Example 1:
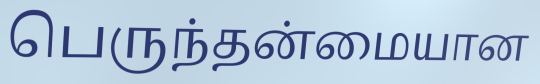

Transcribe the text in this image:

பெருந்தன்மையான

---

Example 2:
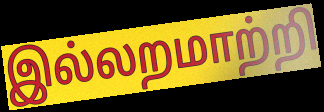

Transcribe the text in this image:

இல்லறமாற்றி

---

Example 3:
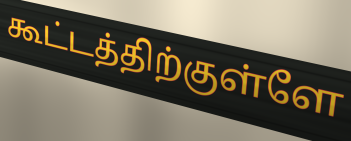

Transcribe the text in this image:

கூட்டத்திற்குள்ளே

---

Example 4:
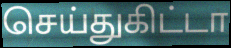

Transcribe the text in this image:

செய்துகிட்டா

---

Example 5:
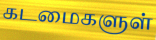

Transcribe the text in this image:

கடமைகளுள்